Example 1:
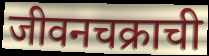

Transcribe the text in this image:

जीवनचक्राची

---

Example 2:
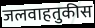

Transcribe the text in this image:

जलवाहतुकीस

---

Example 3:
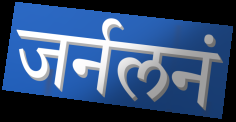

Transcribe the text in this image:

जर्नलनं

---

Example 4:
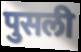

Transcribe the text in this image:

पुसली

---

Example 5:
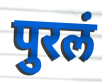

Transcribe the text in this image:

पुरलं